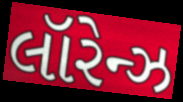
લૉરેન્ઝ